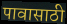
पावासाठी